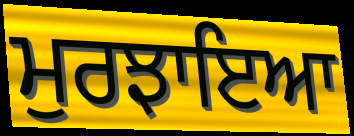
ਮੁਰਝਾਇਆ